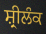
ਸ਼੍ਰੀਲੰਕ